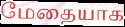
மேதையாக